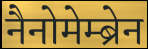
नैनोमेम्ब्रेन